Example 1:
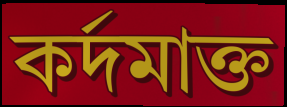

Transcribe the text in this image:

কর্দমাক্ত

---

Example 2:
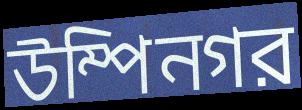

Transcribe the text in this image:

উম্পিনগর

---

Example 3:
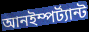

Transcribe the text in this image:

আনইম্পর্ট্যান্ট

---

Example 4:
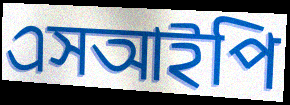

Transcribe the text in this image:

এসআইপি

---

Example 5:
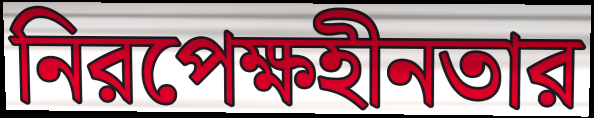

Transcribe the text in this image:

নিরপেক্ষহীনতার